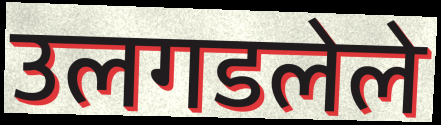
उलगडलेले